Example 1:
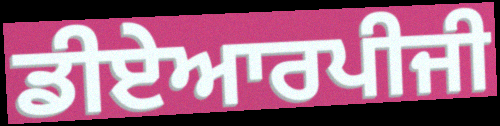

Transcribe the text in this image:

ਡੀਏਆਰਪੀਜੀ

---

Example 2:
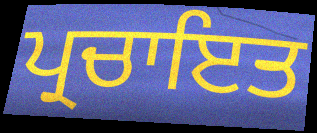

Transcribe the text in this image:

ਪ੍ਰਚਾਇਤ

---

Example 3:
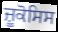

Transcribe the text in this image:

ਜ਼ੂਕੋਸਿਸ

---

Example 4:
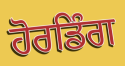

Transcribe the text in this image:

ਹੋਰਡਿੰਗ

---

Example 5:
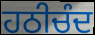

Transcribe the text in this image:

ਹਠੀਚੰਦ